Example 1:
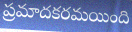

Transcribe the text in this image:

ప్రమాదకరమయింది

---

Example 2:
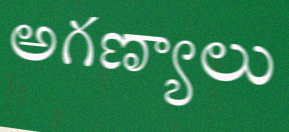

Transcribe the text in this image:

అగణ్యాలు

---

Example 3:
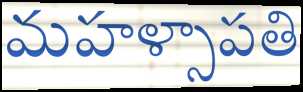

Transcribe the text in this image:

మహళ్సాపతి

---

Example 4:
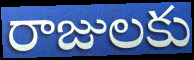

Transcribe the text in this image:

రాజులకు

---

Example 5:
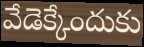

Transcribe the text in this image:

వేడెక్కేందుకు